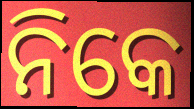
ନିକେ